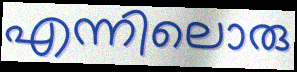
എന്നിലൊരു